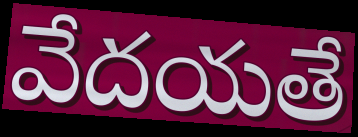
వేదయతే